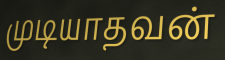
முடியாதவன்